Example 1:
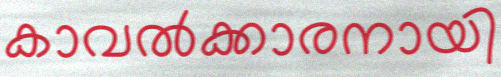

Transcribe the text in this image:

കാവൽക്കാരനായി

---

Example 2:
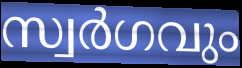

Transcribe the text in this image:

സ്വർഗവും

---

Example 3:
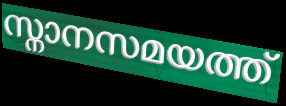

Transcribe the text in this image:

സ്നാനസമയത്ത്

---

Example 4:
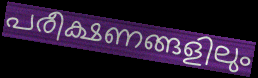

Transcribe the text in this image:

പരീക്ഷണങ്ങളിലും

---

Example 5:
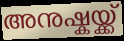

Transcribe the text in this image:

അനുഷ്കയ്ക്ക്